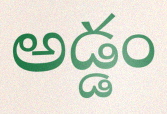
అడ్డం